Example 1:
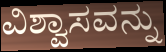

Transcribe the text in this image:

ವಿಶ್ವಾಸವನ್ನು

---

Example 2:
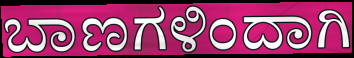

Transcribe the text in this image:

ಬಾಣಗಳಿಂದಾಗಿ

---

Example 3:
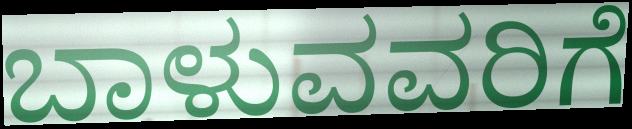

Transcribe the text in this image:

ಬಾಳುವವರಿಗೆ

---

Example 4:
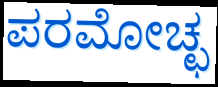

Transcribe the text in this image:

ಪರಮೋಚ್ಛ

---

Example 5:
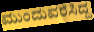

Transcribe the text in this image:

ಮುಂದುವರೆಸಿದ್ದ